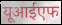
यूआईएफ